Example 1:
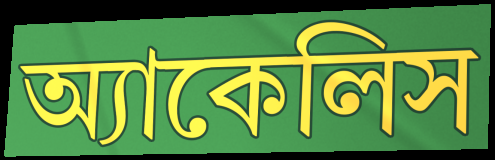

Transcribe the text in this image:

অ্যাকেলিস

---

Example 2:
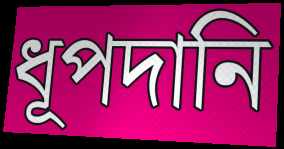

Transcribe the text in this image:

ধূপদানি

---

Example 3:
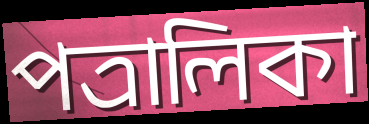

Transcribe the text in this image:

পত্রালিকা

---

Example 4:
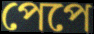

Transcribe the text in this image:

পেপে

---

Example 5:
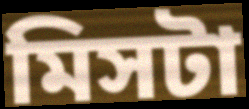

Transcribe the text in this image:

মিসটা